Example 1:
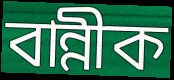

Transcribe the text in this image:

বান্নীক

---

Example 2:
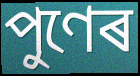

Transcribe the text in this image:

পুণেৰ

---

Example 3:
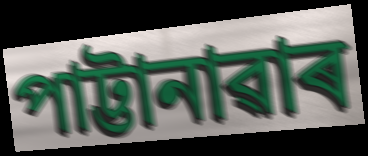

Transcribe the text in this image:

পাট্টানাৱাৰ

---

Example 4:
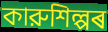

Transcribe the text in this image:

কাৰুশিল্পৰ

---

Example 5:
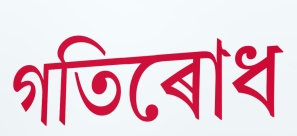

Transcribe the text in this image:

গতিৰোধ